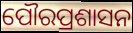
ପୌରପ୍ରଶାସନ